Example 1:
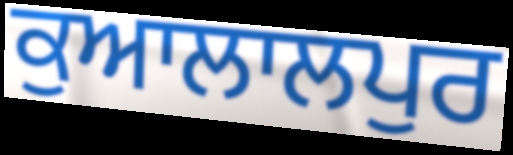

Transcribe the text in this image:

ਕੁਆਲਾਲਪੁਰ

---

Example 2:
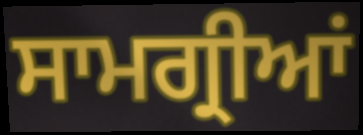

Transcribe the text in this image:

ਸਾਮਗ੍ਰੀਆਂ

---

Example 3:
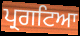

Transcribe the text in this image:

ਪ੍ਰਗਟਿਆ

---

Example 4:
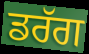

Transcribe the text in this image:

ਡਰੱਗ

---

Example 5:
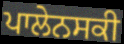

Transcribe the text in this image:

ਪਾਲੇਨਸਕੀ